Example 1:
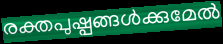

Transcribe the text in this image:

രക്തപുഷ്പങ്ങൾക്കുമേൽ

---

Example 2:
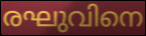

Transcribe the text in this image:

രഘുവിനെ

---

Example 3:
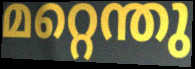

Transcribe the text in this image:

മറ്റെന്തു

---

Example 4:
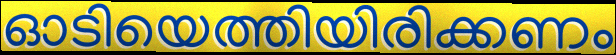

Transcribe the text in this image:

ഓടിയെത്തിയിരിക്കണം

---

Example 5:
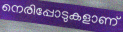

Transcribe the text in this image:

നെരിപ്പോടുകളാണ്